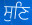
ਸੁਣਿ